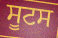
ਸੂਟਸ